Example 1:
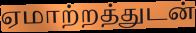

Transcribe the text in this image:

ஏமாற்றத்துடன்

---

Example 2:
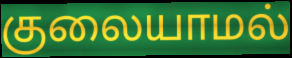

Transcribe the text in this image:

குலையாமல்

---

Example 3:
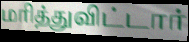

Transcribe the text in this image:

மரித்துவிட்டார்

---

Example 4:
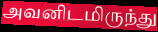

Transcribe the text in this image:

அவனிடமிருந்து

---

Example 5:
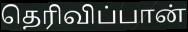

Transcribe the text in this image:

தெரிவிப்பான்